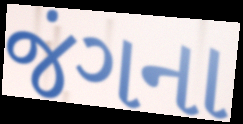
જંગના